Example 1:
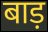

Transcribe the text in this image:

बाड़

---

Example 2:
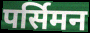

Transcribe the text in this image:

पर्सिमन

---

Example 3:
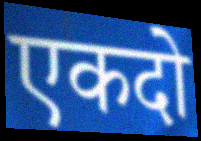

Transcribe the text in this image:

एकदो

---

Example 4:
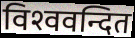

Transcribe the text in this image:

विश्ववन्दित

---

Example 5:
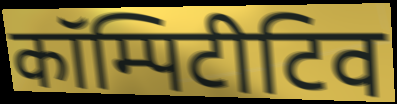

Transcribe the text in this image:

कॉम्पिटीटिव